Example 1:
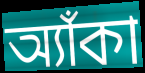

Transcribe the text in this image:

অ্যাঁকা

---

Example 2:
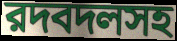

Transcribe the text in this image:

রদবদলসহ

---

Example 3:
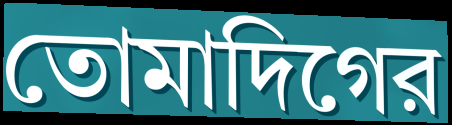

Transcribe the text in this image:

তোমাদিগের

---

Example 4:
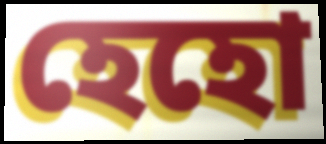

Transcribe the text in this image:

হেহো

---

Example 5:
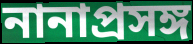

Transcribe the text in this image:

নানাপ্রসঙ্গ